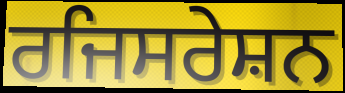
ਰਜਿਸਰੇਸ਼ਨ